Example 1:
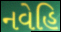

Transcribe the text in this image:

નવેહિ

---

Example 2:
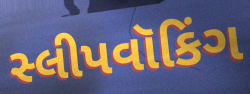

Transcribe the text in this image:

સ્લીપવૉકિંગ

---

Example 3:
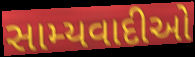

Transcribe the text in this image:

સામ્યવાદીઓ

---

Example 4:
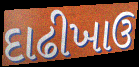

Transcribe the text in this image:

દાઢીખાઉ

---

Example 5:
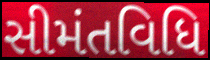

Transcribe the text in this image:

સીમંતવિધિ